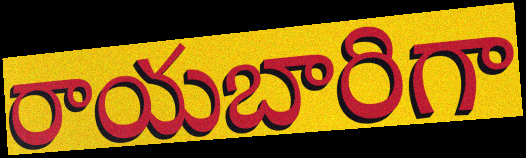
రాయబారిగా